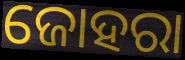
ଜୋହରା